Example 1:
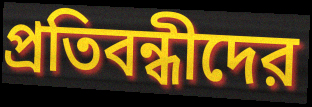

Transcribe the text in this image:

প্রতিবন্ধীদের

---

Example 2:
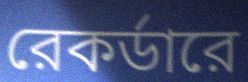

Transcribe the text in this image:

রেকর্ডারে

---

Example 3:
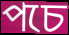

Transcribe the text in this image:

পচে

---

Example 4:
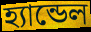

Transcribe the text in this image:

হ্যান্ডেল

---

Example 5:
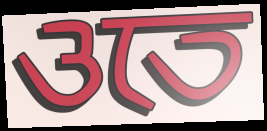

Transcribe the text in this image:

ওতে